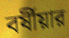
বর্ষীয়ার